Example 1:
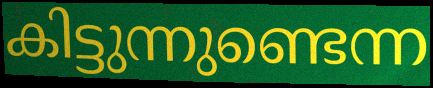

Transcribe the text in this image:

കിട്ടുന്നുണ്ടെന്ന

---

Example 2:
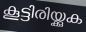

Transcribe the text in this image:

കൂട്ടിരിയ്ക്കുക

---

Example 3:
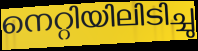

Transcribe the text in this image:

നെറ്റിയിലിടിച്ചു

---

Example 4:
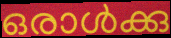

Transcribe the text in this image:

ഒരാൾക്കു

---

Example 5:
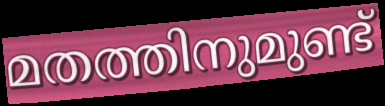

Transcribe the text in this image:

മതത്തിനുമുണ്ട്